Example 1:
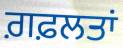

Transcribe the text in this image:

ਗ਼ਫ਼ਲਤਾਂ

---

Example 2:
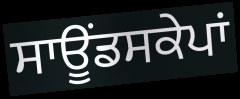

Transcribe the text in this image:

ਸਾਊਂਡਸਕੇਪਾਂ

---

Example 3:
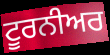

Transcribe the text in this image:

ਟੂਰਨੀਅਰ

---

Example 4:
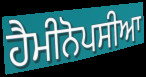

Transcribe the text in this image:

ਹੈਮੀਨੋਪਸੀਆ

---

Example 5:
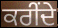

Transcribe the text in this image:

ਕਰੀਂਦੇ